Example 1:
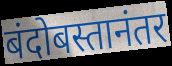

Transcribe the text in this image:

बंदोबस्तानंतर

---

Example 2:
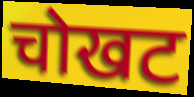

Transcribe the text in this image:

चोखट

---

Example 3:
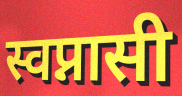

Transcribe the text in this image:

स्वप्नासी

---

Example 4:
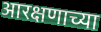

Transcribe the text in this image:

आरक्षणाच्या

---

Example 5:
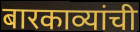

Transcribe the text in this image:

बारकाव्यांची